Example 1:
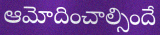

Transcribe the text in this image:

ఆమోదించాల్సిందే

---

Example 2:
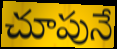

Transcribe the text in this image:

చూపునే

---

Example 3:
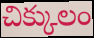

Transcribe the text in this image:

చిక్కులం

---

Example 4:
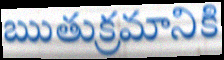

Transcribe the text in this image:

ఋతుక్రమానికి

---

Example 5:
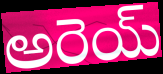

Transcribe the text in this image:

అరెయ్